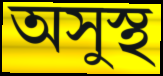
অসুস্থ